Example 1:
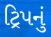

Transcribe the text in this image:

ટ્રિપનું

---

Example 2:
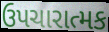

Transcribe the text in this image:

ઉપચારાત્મક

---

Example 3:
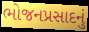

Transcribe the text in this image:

ભોજનપ્રસાદનું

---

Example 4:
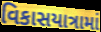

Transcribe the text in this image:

વિકાસયાત્રામાં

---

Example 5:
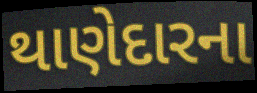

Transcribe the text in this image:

થાણેદારના